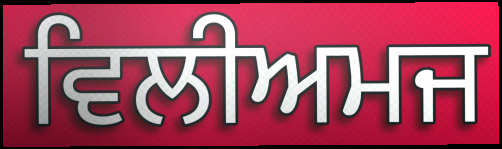
ਵਿਲੀਅਮਜ